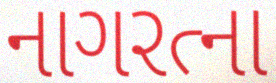
નાગરત્ના